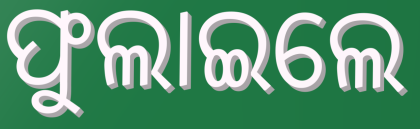
ଫୁଲାଇଲେ